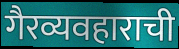
गैरव्यवहाराची